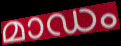
മാഡം